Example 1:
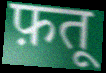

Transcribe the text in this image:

फ़तू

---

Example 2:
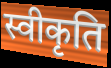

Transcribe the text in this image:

स्‍वीकृति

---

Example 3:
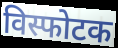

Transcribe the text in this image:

विस्फोटक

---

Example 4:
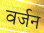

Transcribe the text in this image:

वर्जन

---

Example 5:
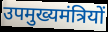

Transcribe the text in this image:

उपमुख्यमंत्रियों